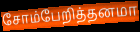
சோம்பேறித்தனமா